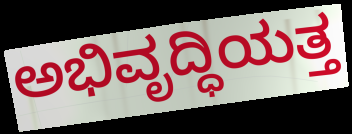
ಅಭಿವೃದ್ಧಿಯತ್ತ